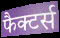
फैक्टर्स